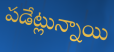
పడేట్లున్నాయి